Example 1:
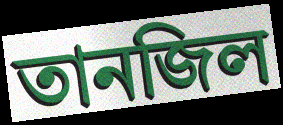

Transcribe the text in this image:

তানজিল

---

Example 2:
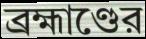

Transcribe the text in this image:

ব্রহ্মাণ্ডের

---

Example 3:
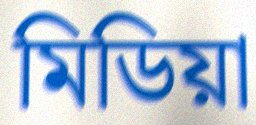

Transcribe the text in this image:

মিডিয়া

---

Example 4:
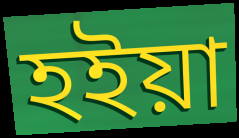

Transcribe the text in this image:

হইয়া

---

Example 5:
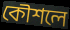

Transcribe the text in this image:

কৌশলে